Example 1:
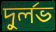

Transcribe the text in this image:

দুর্লভ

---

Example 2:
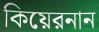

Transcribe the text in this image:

কিয়েরনান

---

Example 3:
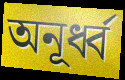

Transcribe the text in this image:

অনূর্ধ্ব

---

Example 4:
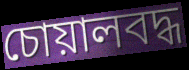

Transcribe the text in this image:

চোয়ালবদ্ধ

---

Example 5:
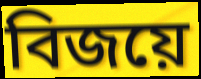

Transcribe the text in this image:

বিজয়ে